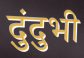
दुंदुभी